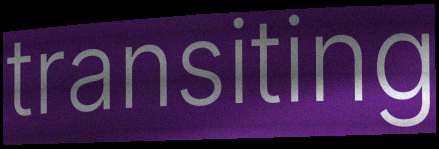
transiting